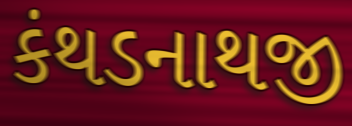
કંથડનાથજી